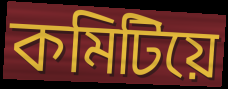
কমিটিয়ে